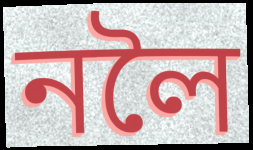
নলৈ